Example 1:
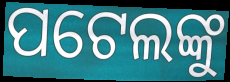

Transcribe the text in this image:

ପଟେଲଙ୍କୁ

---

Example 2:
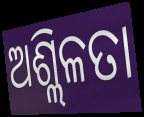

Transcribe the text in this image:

ଅଶ୍ଲିଳତା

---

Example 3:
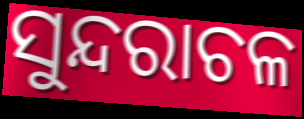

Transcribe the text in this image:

ସୁନ୍ଦରାଚଳ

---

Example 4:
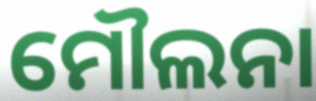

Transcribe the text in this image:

ମୌଲନା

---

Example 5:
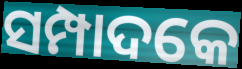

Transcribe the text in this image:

ସମ୍ପାଦକେ